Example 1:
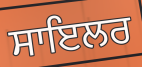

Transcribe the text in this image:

ਸਾਇਲਰ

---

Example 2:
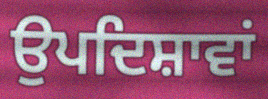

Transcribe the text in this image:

ਉਪਦਿਸ਼ਾਵਾਂ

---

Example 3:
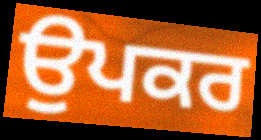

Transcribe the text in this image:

ਉਪਕਰ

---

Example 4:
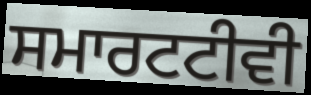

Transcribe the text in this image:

ਸਮਾਰਟਟੀਵੀ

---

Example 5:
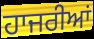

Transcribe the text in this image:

ਹਾਜਰੀਆਂ